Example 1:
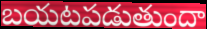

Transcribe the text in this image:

బయటపడుతుందా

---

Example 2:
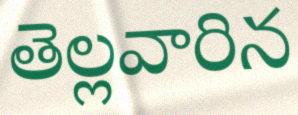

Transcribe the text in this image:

తెల్లవారిన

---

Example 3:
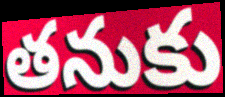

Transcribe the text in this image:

తనుకు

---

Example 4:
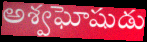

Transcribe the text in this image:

అశ్వఘోషుడు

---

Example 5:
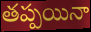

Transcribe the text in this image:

తప్పయినా